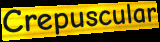
Crepuscular